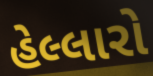
હેલ્લારો